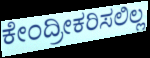
ಕೇಂದ್ರೀಕರಿಸಲಿಲ್ಲ